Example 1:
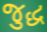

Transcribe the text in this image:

જુદ્ધ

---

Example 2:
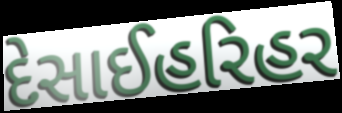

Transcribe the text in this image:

દેસાઈહરિહર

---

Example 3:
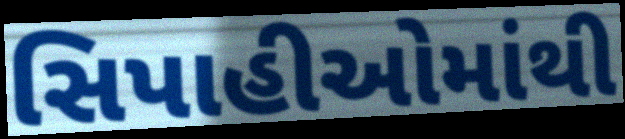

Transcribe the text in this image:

સિપાહીઓમાંથી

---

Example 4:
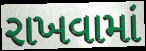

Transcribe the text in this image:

રાખવામાં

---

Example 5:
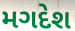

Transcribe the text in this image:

મગદેશ